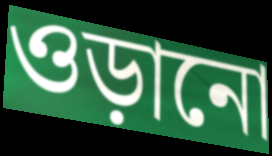
ওড়ানো